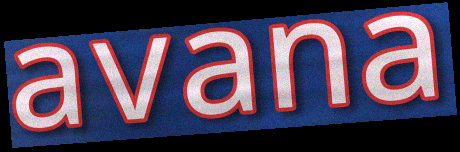
avana